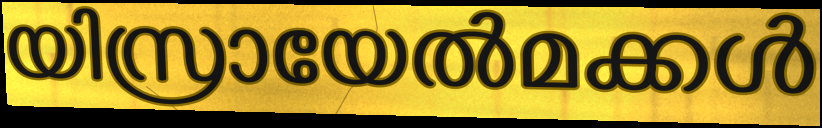
യിസ്രായേൽമക്കൾ